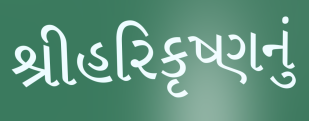
શ્રીહરિકૃષ્ણનું